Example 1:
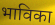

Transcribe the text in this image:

भाविका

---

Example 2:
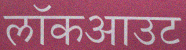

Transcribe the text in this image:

लॉकआउट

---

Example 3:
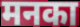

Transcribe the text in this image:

मनका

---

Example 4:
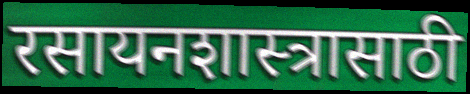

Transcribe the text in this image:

रसायनशास्त्रासाठी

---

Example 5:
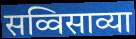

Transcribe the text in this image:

सव्विसाव्या